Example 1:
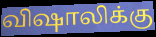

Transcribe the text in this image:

விஷாலிக்கு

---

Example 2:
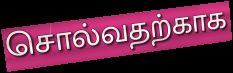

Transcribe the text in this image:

சொல்வதற்காக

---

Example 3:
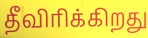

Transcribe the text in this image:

தீவிரிக்கிறது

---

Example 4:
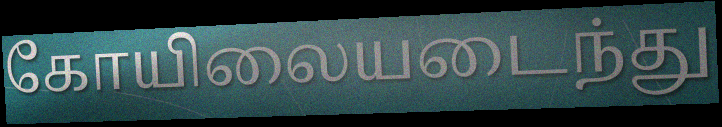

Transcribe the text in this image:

கோயிலையடைந்து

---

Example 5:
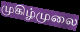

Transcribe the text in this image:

முகிழ்முலை